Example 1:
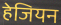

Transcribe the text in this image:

हेजियन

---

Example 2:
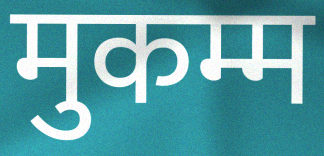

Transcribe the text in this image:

मुकम्म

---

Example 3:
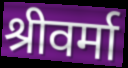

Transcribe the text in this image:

श्रीवर्मा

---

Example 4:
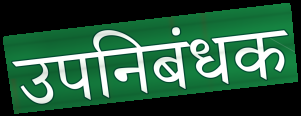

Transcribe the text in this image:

उपनिबंधक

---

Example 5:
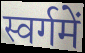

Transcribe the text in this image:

स्वर्गमें